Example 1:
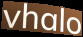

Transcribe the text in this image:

vhalo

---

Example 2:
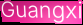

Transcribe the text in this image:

Guangxi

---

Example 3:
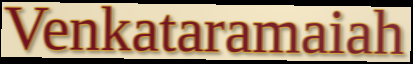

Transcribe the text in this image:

Venkataramaiah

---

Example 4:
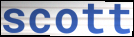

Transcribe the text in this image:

scott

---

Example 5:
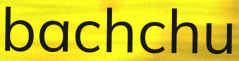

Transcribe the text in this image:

bachchu